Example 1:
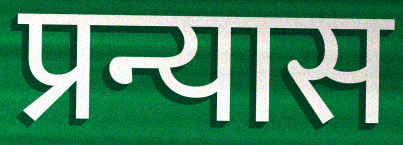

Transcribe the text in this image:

प्रन्यास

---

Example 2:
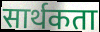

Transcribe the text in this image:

सार्थकता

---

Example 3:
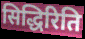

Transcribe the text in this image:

सिद्धिरिति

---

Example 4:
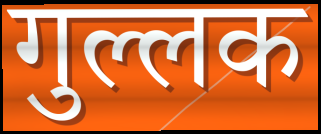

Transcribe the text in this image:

गुल्लक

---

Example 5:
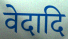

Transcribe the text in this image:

वेदादि